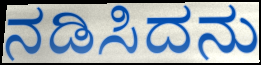
ನಡಿಸಿದನು